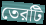
তেরটি